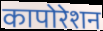
कापोरेशन